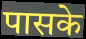
पासके